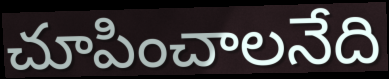
చూపించాలనేది